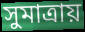
সুমাত্রায়